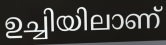
ഉച്ചിയിലാണ്